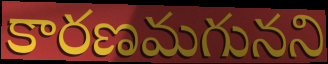
కారణమగునని